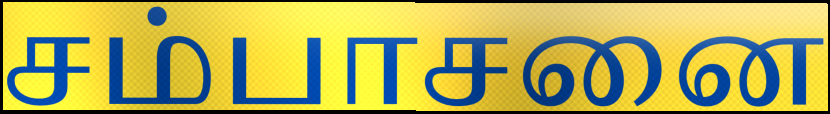
சம்பாசனை